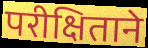
परीक्षिताने